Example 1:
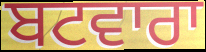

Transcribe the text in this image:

ਬਟਵਾਰਾ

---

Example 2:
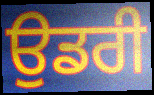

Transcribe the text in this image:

ਉਡਰੀ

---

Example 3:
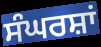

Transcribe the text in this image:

ਸੰਘਰਸ਼ਾਂ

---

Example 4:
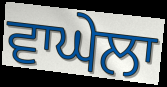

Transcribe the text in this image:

ਵਾਘੇਲਾ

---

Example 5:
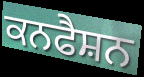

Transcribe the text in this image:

ਕਨਫੈਸ਼ਨ